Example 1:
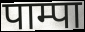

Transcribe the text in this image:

पाम्पा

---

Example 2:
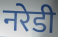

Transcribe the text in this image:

नरेडी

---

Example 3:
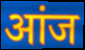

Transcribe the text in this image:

आंज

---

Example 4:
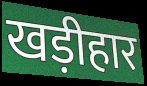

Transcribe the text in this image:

खड़ीहार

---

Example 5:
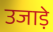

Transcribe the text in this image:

उजाड़े